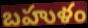
బహుళం